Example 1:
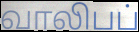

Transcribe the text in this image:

வாலிபப்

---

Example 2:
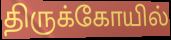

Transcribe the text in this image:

திருக்கோயில்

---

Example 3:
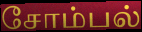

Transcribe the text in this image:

சோம்பல்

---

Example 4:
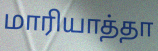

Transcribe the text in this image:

மாரியாத்தா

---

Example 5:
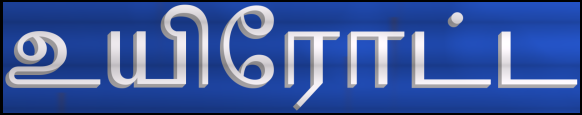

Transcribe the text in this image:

உயிரோட்ட